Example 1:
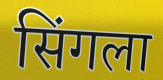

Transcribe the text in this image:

सिंगला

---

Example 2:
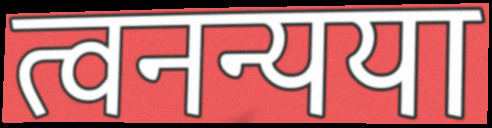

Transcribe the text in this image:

त्वनन्यया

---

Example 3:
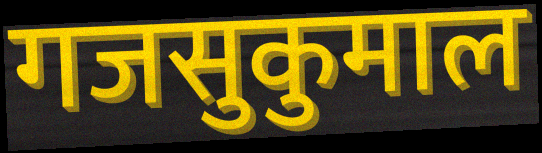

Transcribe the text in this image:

गजसुकुमाल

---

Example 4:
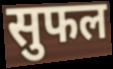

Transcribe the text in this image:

सुफल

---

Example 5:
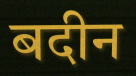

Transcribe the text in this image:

बदीन